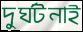
দুর্ঘটনাই